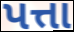
પત્તા